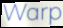
Warp